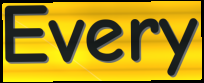
Every